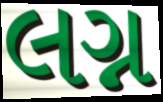
લગ્ન